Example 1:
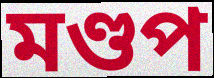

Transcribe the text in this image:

মণ্ডপ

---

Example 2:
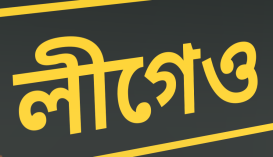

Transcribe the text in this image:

লীগেও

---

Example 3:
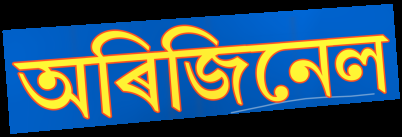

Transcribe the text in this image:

অৰিজিনেল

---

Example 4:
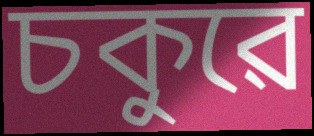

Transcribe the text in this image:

চকুৱে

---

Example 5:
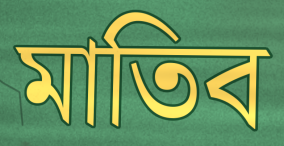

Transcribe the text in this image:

মাতিব